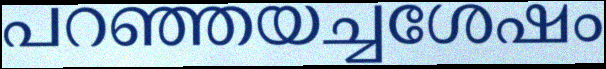
പറഞ്ഞയച്ചശേഷം